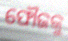
ଫୌଜକୁ